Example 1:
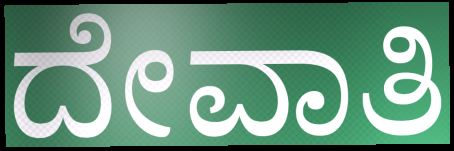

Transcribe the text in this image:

ದೇವಾತಿ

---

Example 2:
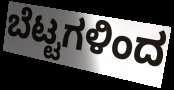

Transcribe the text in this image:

ಬೆಟ್ಟಗಳಿಂದ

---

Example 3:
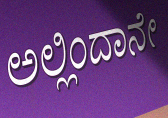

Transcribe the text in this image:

ಅಲ್ಲಿಂದಾನೇ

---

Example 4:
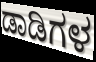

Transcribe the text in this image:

ಡಾಡಿಗಳ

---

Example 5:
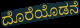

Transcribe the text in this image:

ದೊರೆಯೊಡನೆ